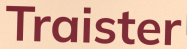
Traister